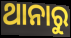
ଥାନାରୁ